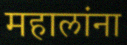
महालांना